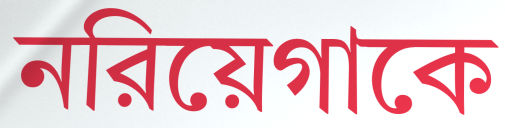
নরিয়েগাকে